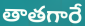
తాతగారే